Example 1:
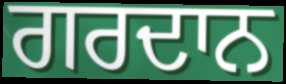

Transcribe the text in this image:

ਗਰਦਾਨ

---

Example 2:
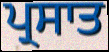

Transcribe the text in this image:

ਪ੍ਰਸਾਤ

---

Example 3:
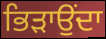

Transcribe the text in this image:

ਭਿੜਾਉਂਦਾ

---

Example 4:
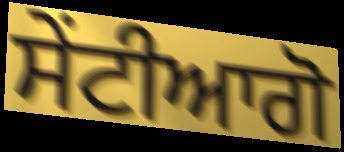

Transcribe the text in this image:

ਸੇਂਟੀਆਗੋ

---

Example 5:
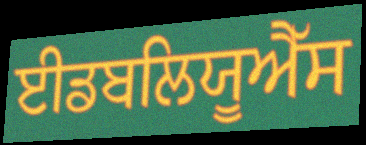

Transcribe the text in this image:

ਈਡਬਲਿਯੂਐੱਸ